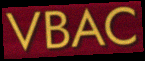
VBAC